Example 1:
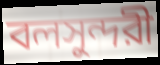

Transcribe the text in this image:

বলসুন্দরী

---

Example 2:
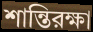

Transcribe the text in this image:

শান্তিরক্ষা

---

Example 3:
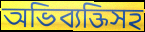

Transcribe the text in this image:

অভিব্যক্তিসহ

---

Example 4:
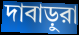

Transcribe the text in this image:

দাবাড়ুরা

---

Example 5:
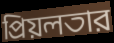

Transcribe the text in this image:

প্রিয়লতার